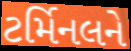
ટર્મિનલને